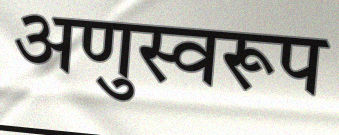
अणुस्वरूप